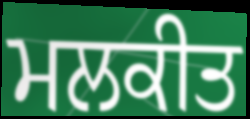
ਮਲਕੀਤ